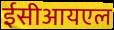
ईसीआयएल